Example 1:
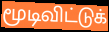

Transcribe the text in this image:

மூடிவிட்டுக்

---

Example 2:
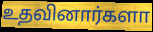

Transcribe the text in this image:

உதவினார்களா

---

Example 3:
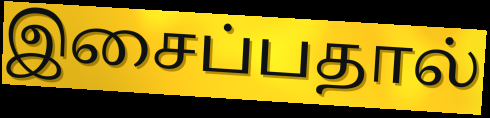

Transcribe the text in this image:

இசைப்பதால்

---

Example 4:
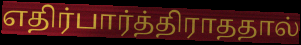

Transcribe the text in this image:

எதிர்பார்த்திராததால்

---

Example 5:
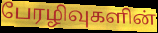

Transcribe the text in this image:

பேரழிவுகளின்